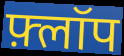
फ़्लॉप